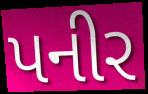
પનીર